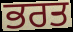
ਭਰਤ